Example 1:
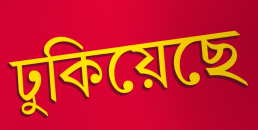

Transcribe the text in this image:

ঢুকিয়েছে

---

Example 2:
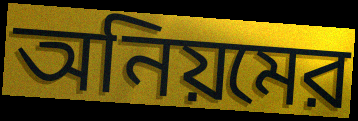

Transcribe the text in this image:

অনিয়মের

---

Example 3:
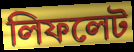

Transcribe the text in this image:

লিফলেট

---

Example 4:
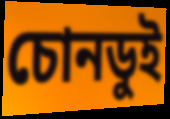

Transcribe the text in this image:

চোনডুই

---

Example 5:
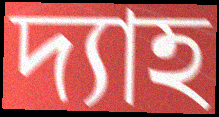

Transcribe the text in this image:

দ্যাহ